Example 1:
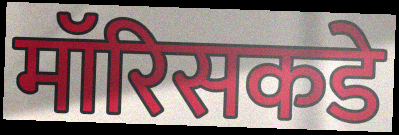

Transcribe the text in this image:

मॉरिसकडे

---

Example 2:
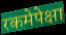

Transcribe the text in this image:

रकमेपेक्षा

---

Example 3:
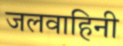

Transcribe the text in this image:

जलवाहिनी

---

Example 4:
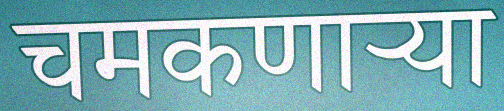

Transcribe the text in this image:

चमकणाऱ्या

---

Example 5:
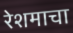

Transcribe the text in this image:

रेशमाचा